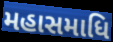
મહાસમાધિ